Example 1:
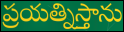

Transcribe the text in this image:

ప్రయత్నిస్తాను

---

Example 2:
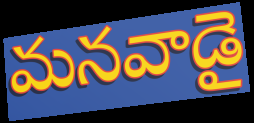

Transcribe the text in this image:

మనవాడై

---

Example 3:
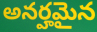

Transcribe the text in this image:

అనర్హమైన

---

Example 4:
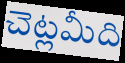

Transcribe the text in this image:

చెట్లమీది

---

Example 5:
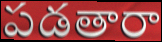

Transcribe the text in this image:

పడతారా